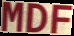
MDF